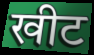
खीट